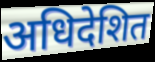
अधिदेशित